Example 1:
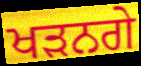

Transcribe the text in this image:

ਖੜਨਗੇ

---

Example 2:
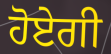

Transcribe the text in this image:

ਹੋਏਗੀ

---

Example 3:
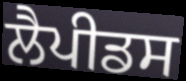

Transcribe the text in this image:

ਲੈਪੀਡਸ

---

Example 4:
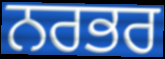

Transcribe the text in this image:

ਨਰਭਰ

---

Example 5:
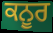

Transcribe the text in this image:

ਕਨੂਰ